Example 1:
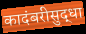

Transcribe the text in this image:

कादंबरीसुद्धा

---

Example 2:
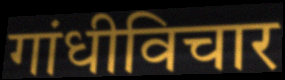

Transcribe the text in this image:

गांधीविचार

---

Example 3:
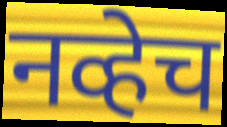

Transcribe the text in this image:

नव्हेच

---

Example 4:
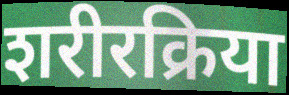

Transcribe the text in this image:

शरीरक्रिया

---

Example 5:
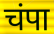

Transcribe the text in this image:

चंपा